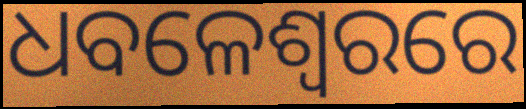
ଧବଳେଶ୍ଵରରେ